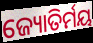
ଜ୍ୟୋତିର୍ମୟ